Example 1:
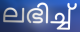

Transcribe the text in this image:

ലഭിച്ച്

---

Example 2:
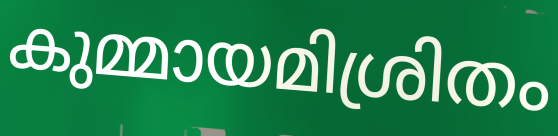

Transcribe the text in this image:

കുമ്മായമിശ്രിതം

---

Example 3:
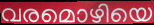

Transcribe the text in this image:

വരമൊഴിയെ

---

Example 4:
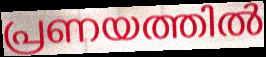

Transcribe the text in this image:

പ്രണയത്തിൽ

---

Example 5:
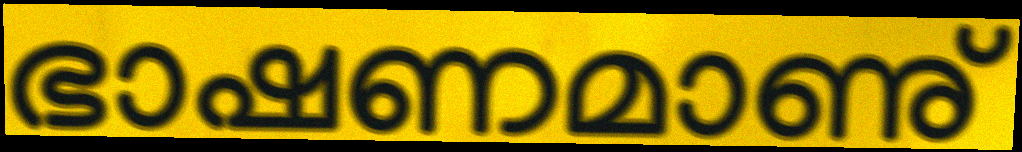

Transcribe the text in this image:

ഭാഷണമാണു്